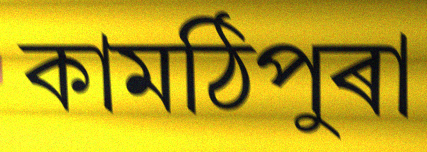
কামঠিপুৰা